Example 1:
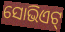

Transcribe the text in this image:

ସୋଭିଏଟ୍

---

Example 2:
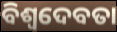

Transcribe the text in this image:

ବିଶ୍ୱଦେବତା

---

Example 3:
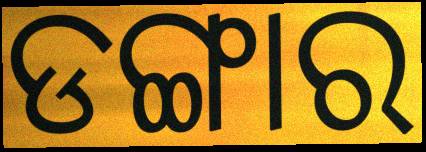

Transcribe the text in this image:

ଡଙ୍ଗାର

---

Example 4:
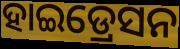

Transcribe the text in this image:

ହାଇଡ୍ରେସନ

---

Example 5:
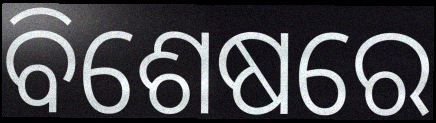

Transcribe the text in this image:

ବିଶେଷରେ